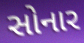
સોનાર